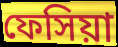
ফেসিয়া